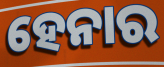
ହେନାର